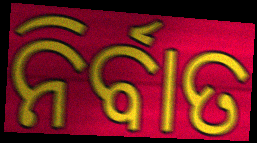
ନିର୍ବାତ